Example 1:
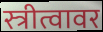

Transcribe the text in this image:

स्त्रीत्वावर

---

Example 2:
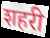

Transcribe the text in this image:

शहरी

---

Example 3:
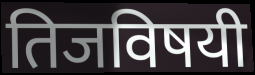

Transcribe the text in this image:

तिजविषयी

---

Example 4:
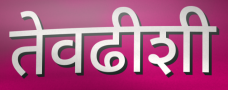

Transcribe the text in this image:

तेवढीशी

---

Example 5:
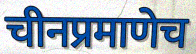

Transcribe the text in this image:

चीनप्रमाणेच